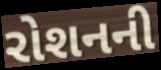
રોશનની